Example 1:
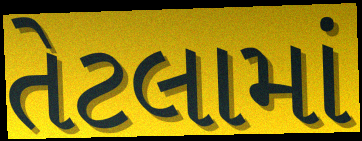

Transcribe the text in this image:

તેટલામાં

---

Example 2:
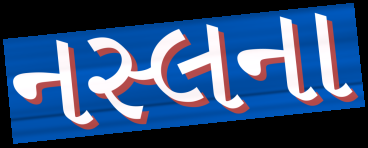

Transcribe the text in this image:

નસ્લના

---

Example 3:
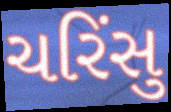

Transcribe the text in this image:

ચરિંસુ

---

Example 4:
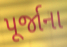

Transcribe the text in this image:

પૂર્જાના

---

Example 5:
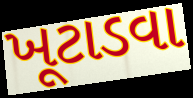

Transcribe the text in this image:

ખૂટાડવા